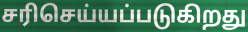
சரிசெய்யப்படுகிறது